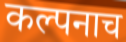
कल्पनाच